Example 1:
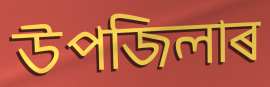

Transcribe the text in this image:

উপজিলাৰ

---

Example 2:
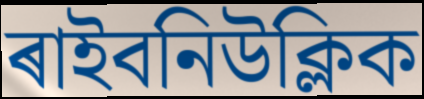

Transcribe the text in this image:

ৰাইবনিউক্লিক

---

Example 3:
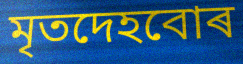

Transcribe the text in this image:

মৃতদেহবোৰ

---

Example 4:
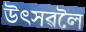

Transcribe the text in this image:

উৎসৱলৈ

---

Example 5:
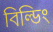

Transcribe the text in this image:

বিল্ডিং